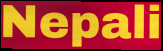
Nepali